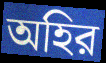
অহির